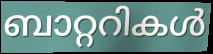
ബാറ്ററികൾ